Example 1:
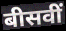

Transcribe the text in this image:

बीसवीं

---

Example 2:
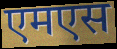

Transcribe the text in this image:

एमएस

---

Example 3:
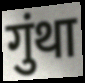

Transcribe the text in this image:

गुंथा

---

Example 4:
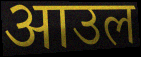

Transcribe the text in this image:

आउल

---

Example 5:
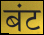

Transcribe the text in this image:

बंट